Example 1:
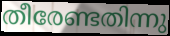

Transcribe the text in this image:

തീരേണ്ടതിന്നു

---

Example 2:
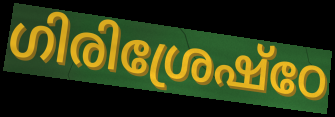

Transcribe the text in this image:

ഗിരിശ്രേഷ്ഠേ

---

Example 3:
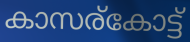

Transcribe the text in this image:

കാസര്കോട്ട്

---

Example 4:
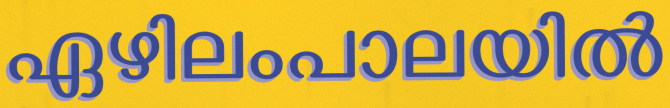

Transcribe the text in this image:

ഏഴിലംപാലയിൽ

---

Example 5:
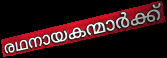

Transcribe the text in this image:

രഥനായകന്മാർക്ക്